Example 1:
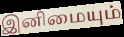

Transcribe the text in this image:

இனிமையும்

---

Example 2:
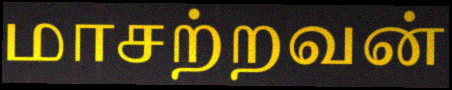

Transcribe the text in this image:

மாசற்றவன்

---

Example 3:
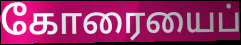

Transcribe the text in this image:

கோரையைப்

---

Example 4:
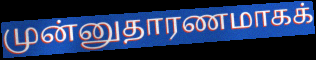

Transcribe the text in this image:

முன்னுதாரணமாகக்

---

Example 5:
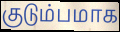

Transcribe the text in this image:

குடும்பமாக